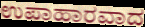
ಉಪಾಹಾರವಾದ